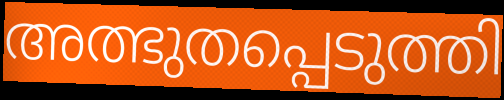
അത്ഭുതപ്പെടുത്തി